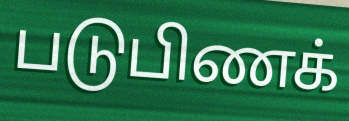
படுபிணக்